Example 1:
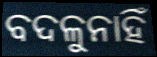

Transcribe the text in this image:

ବଦଳୁନାହିଁ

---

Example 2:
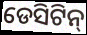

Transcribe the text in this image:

ଡେସିଟିନ୍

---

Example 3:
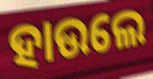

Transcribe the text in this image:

ହାଉଲେ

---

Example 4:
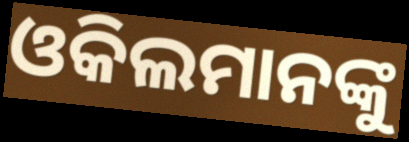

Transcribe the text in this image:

ଓକିଲମାନଙ୍କୁ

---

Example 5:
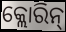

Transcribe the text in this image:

କ୍ଲୋରିନ୍